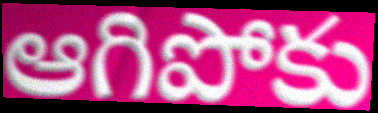
ఆగిపోకు